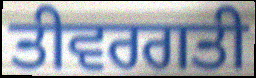
ਤੀਵਰਗਤੀ